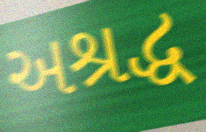
અશ્રદ્ધ